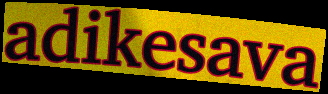
adikesava